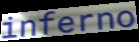
inferno